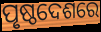
ପୃଷ୍ଠଦେଶରେ